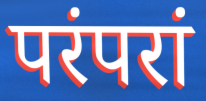
परंपरां